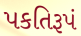
પકતિરૂપં